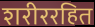
शरीररहित